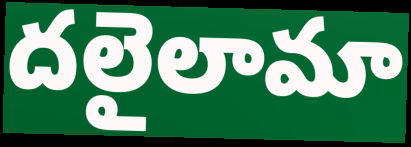
దలైలామా